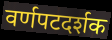
वर्णपटदर्शक